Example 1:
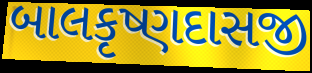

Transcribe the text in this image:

બાલકૃષ્ણદાસજી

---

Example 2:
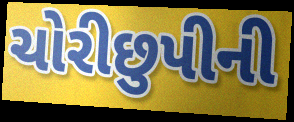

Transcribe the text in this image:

ચોરીછુપીની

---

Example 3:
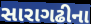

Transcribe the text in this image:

સારાગઢીના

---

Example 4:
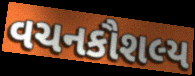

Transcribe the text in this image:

વચનકૌશલ્ય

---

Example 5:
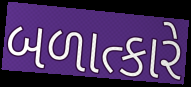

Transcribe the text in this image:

બળાત્કારે